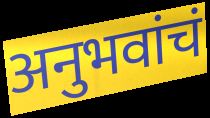
अनुभवांचं